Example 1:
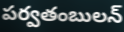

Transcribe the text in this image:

పర్వతంబులన్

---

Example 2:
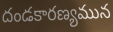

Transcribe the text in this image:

దండకారణ్యమున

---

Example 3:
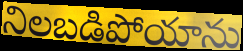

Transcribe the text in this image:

నిలబడిపోయాను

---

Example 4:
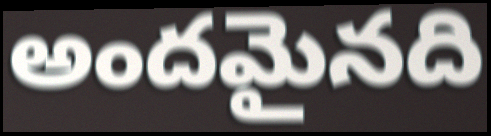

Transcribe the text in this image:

అందమైనది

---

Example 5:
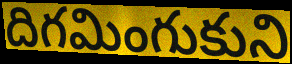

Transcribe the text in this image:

దిగమింగుకుని